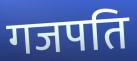
गजपति